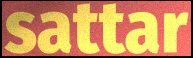
sattar